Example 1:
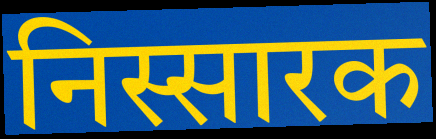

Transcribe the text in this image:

निस्सारक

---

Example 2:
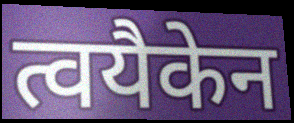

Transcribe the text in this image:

त्वयैकेन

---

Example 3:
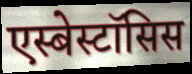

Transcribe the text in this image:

एस्बेस्टॉसिस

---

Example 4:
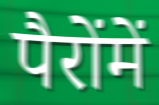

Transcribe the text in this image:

पैरोंमें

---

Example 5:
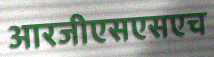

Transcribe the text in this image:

आरजीएसएसएच